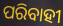
ପରିବାହୀ